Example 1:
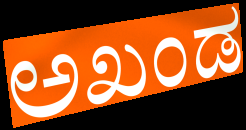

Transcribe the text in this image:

ಅಖಂಡ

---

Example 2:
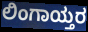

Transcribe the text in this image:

ಲಿಂಗಾಯ್ತರ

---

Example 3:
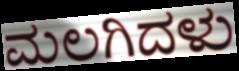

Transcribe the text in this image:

ಮಲಗಿದಳು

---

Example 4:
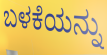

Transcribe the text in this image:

ಬಳಕೆಯನ್ನು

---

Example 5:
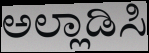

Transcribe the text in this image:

ಅಲ್ಲಾಡಿಸಿ